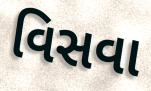
વિસવા